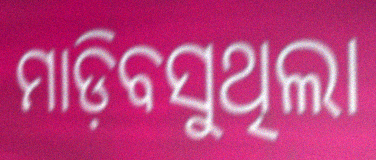
ମାଡ଼ିବସୁଥିଲା